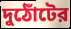
দুঠোঁটের